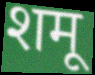
शमू